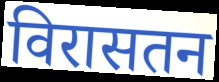
विरासतन